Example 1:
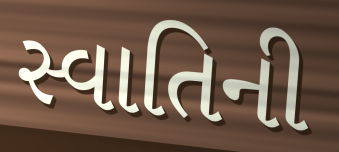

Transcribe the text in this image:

સ્વાતિની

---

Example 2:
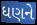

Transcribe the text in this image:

ધણને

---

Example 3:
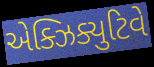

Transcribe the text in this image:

એક્ઝિક્યુટિવે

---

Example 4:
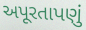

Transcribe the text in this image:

અપૂરતાપણું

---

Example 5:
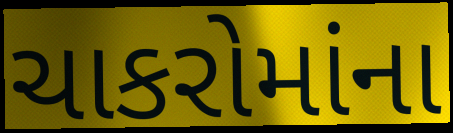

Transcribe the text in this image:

ચાકરોમાંના